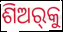
ଶିଅର୍‌କୁ